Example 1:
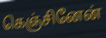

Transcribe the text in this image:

கெஞ்சினேன்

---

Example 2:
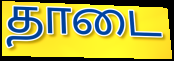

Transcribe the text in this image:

தாடை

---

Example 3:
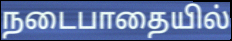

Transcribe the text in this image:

நடைபாதையில்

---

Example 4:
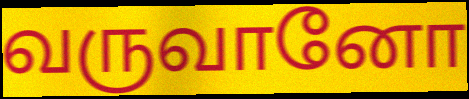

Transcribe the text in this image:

வருவானோ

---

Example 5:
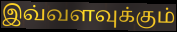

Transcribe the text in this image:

இவ்வளவுக்கும்